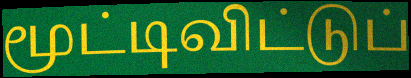
மூட்டிவிட்டுப்